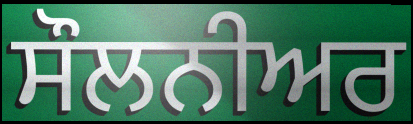
ਸੌਲਨੀਅਰ